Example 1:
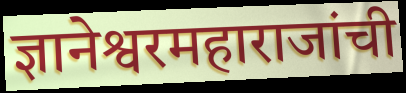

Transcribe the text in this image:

ज्ञानेश्वरमहाराजांची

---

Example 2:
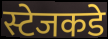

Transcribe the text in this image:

स्टेजकडे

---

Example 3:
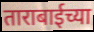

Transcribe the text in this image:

ताराबाईच्या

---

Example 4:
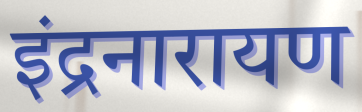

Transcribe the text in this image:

इंद्रनारायण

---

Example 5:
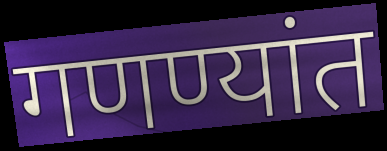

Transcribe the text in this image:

गणण्यांत